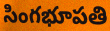
సింగభూపతి